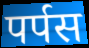
पर्पस